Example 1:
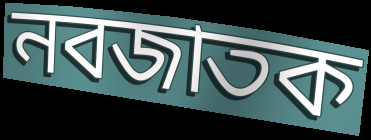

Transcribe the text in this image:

নবজাতক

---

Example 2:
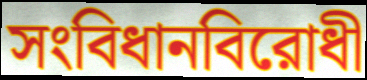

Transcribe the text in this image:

সংবিধানবিরোধী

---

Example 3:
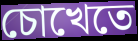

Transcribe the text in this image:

চোখেতে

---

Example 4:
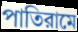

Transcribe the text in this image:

পাতিরামে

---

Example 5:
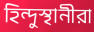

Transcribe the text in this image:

হিন্দুস্থানীরা